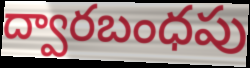
ద్వారబంధపు